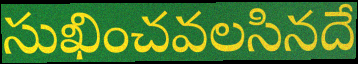
సుఖించవలసినదే